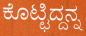
ಕೊಟ್ಟಿದ್ದನ್ನ